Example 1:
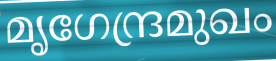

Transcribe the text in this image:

മൃഗേന്ദ്രമുഖം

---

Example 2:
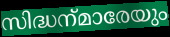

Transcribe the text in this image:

സിദ്ധന്‌മാരേയും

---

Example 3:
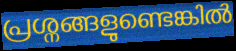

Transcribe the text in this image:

പ്രശ്നങ്ങളുണ്ടെങ്കിൽ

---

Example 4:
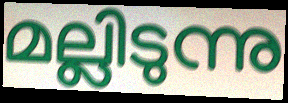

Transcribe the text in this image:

മല്ലിടുന്നു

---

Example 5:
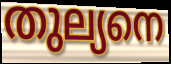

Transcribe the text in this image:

തുല്യനെ